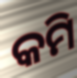
କମି